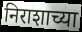
निराशाच्या